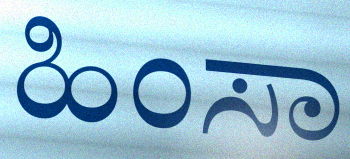
ಹಿಂಸಾ